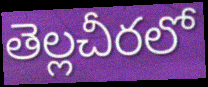
తెల్లచీరలో